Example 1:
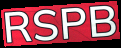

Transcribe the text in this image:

RSPB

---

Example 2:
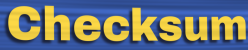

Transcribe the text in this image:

Checksum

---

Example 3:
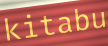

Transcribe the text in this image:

kitabu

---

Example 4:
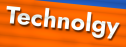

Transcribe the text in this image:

Technolgy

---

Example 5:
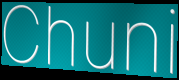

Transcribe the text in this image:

Chuni